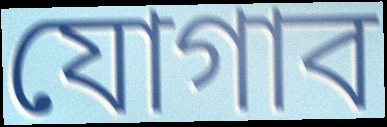
যোগাব